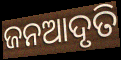
ଜନଆଦୃତି